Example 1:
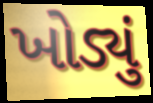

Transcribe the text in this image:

ખોડ્યું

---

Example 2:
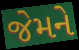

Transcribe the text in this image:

જેમને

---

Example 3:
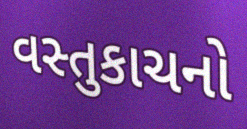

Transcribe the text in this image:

વસ્તુકાચનો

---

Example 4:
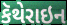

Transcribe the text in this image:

કૅથેરાઇન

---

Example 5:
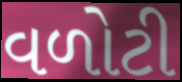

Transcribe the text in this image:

વળોટી